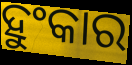
ହୁଂକାର